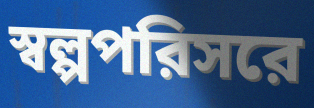
স্বল্পপরিসরে